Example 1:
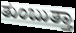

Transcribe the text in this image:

ತುಂಬುತ್ತಾ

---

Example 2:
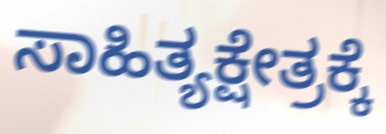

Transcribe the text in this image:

ಸಾಹಿತ್ಯಕ್ಷೇತ್ರಕ್ಕೆ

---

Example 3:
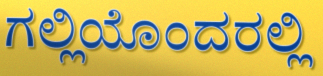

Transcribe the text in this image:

ಗಲ್ಲಿಯೊಂದರಲ್ಲಿ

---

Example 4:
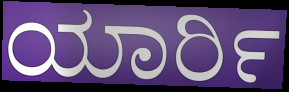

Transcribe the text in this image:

ಯಾರ್ರಿ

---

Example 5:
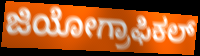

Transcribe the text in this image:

ಜಿಯೋಗ್ರಾಫಿಕಲ್